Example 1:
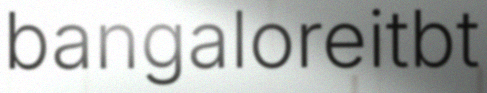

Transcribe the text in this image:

bangaloreitbt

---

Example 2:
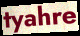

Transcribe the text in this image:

tyahre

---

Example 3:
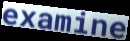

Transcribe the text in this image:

examine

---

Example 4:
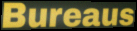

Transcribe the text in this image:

Bureaus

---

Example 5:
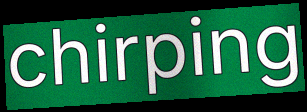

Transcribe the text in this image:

chirping